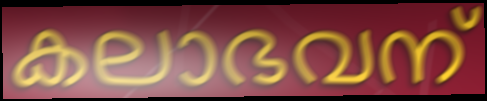
കലാഭവന്